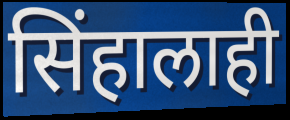
सिंहालाही